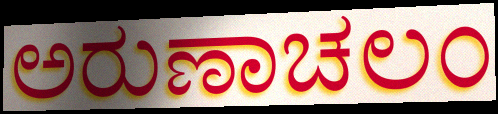
ಅರುಣಾಚಲಂ